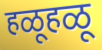
हळूहळू